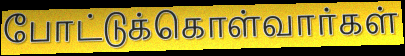
போட்டுக்கொள்வார்கள்